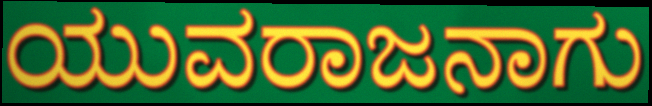
ಯುವರಾಜನಾಗು